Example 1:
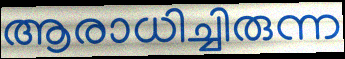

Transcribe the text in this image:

ആരാധിച്ചിരുന്ന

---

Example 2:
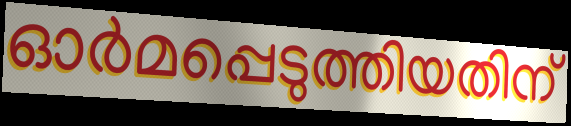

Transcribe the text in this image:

ഓർമപ്പെടുത്തിയതിന്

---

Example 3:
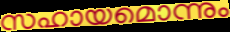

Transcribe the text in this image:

സഹായമൊന്നും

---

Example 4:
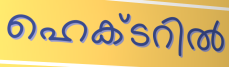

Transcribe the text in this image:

ഹെക്ടറിൽ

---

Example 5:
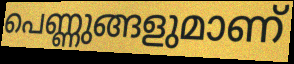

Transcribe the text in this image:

പെണ്ണുങ്ങളുമാണ്